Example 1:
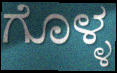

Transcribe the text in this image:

ಗೊಳ್ಳ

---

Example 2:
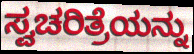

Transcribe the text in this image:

ಸ್ವಚರಿತ್ರೆಯನ್ನು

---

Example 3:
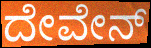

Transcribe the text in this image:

ದೇವೇನ್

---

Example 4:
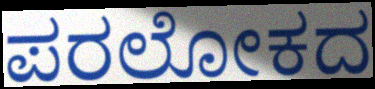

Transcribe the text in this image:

ಪರಲೋಕದ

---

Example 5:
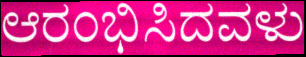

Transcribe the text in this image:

ಆರಂಭಿಸಿದವಳು